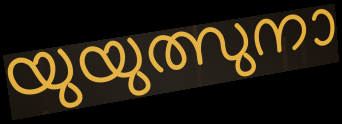
യുയുത്സുനാ